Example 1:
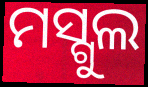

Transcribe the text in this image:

ମସ୍ଗୁଲ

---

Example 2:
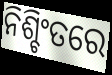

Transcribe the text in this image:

ନିଶ୍ଚିଂତରେ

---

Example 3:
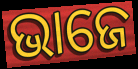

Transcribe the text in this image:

ଭାଜେ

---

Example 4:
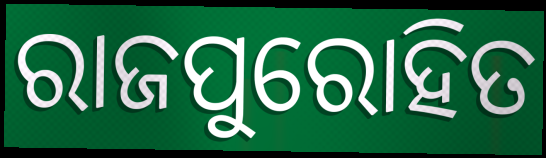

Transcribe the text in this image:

ରାଜପୁରୋହିତ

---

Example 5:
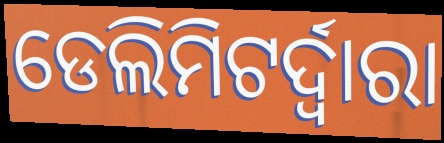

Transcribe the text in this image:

ଡେଲିମିଟର୍ଦ୍ୱାରା